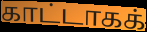
காட்டாகக்